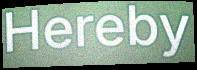
Hereby